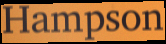
Hampson